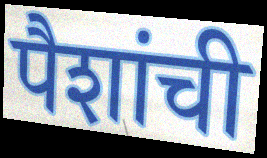
पैशांची